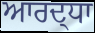
ਆਰਦ੍ਧਾ